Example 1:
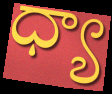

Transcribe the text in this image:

ధ్యా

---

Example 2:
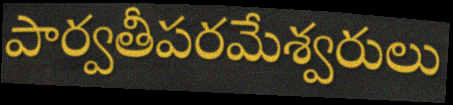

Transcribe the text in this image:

పార్వతీపరమేశ్వరులు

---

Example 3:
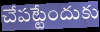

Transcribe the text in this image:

చేపట్టేందుకు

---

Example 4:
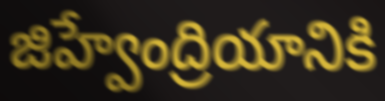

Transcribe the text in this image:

జిహ్వేంద్రియానికి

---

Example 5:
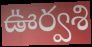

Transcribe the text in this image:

ఊర్వశి